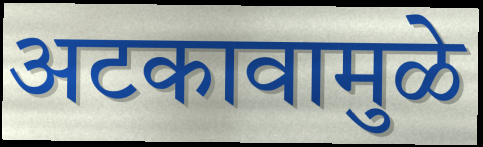
अटकावामुळे